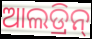
ଆଲଡ୍ରିନ୍